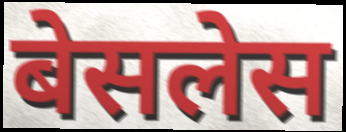
बेसलेस